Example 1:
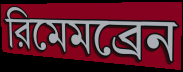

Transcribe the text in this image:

রিমেমব্রেন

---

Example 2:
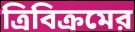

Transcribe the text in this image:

ত্রিবিক্রমের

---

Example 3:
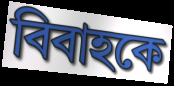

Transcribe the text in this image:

বিবাহকে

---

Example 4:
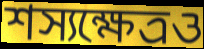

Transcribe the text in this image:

শস্যক্ষেত্রও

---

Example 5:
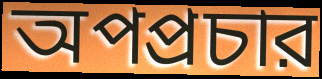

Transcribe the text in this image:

অপপ্রচার